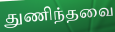
துணிந்தவை